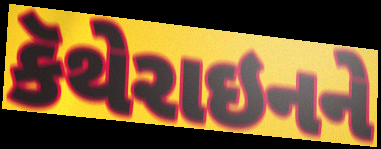
કૅથેરાઇનને